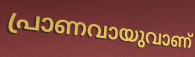
പ്രാണവായുവാണ്